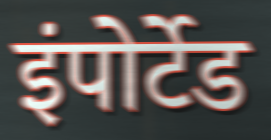
इंपोर्टेड